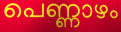
പെണ്ണാഴം